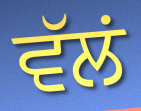
ਵੱਲਂ